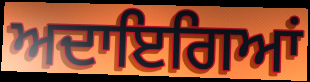
ਅਦਾਇਗਿਆਂ